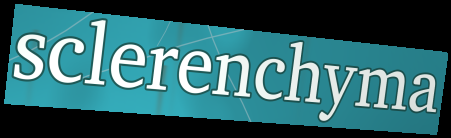
sclerenchyma